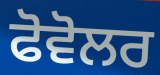
ਫੋਵੋਲਰ